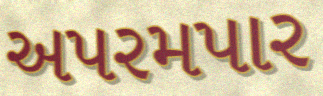
અપરમપાર